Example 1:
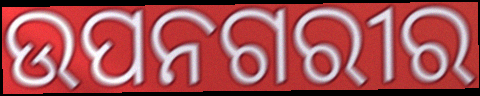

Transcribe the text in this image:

ଉପନଗରୀର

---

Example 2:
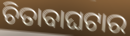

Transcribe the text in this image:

ଚିତାବାଘଟାର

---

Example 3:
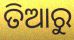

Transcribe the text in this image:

ତିଆରୁ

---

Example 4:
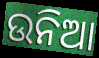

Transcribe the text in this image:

ଉନିଆ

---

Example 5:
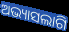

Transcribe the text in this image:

ଅଭ୍ୟାସଲାଗି